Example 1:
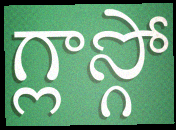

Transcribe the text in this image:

గ్లాస్గో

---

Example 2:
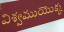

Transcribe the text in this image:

విశ్వముయొక్క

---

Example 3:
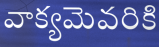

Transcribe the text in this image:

వాక్యమెవరికి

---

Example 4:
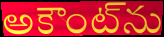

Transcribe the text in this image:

అకౌంట్‌ను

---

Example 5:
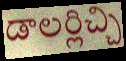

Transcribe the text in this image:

డాలర్లిచ్చి